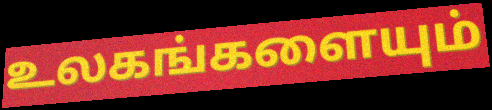
உலகங்களையும்